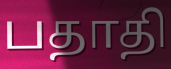
பதாதி